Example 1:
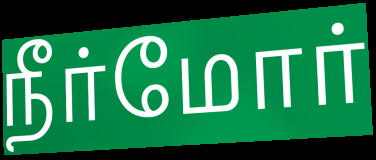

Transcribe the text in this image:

நீர்மோர்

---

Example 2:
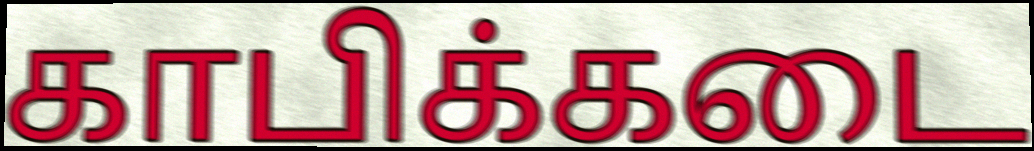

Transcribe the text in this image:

காபிக்கடை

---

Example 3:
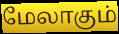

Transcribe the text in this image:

மேலாகும்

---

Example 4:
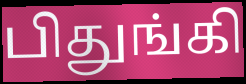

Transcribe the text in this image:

பிதுங்கி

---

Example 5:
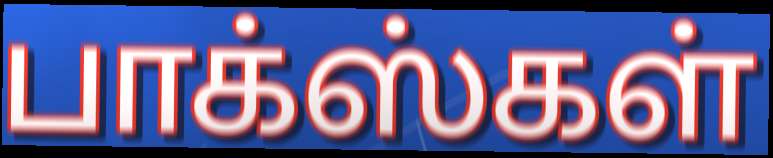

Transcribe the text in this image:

பாக்ஸ்கள்